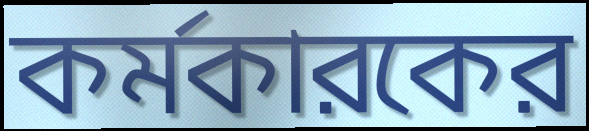
কর্মকারকের